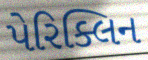
પેરિક્લિન